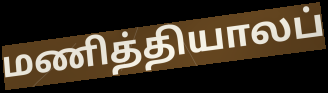
மணித்தியாலப்